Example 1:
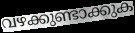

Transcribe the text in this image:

വഴക്കുണ്ടാക്കുക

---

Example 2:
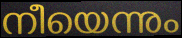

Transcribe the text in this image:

നീയെന്നും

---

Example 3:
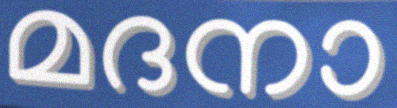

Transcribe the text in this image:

മദനാ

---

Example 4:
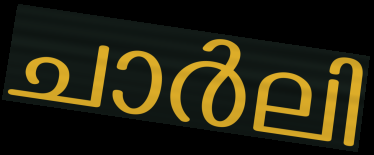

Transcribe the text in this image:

ചാർലി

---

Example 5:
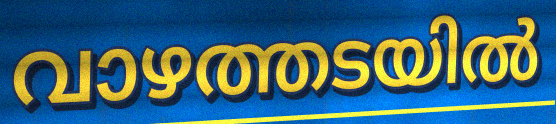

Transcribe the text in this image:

വാഴത്തടയിൽ